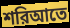
শরিআতে